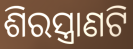
ଶିରସ୍ତ୍ରାଣଟି